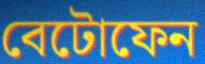
বেটোফেন